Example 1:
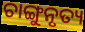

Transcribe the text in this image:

ଚାଙ୍ଗୁନୃତ୍ୟ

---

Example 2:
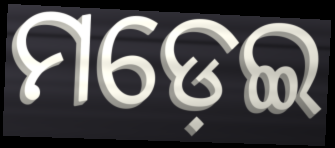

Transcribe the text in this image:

ମଡ଼େଇ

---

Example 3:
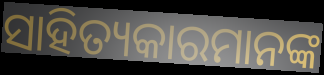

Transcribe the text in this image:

ସାହିତ୍ୟକାରମାନଙ୍କ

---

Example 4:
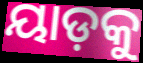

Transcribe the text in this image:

ୟାଡ଼କୁ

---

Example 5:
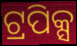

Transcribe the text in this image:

ଟ୍ରପିକ୍ସ